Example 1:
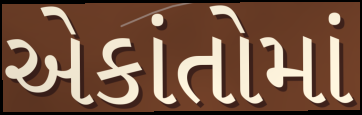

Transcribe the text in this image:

એકાંતોમાં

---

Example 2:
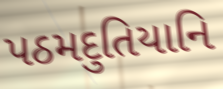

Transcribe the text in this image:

પઠમદુતિયાનિ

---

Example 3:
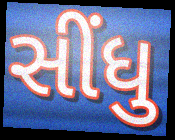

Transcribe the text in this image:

સીંધુ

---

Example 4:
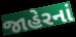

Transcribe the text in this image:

જાહેરનાં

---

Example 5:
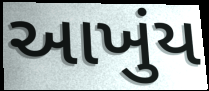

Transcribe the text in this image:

આખુંય